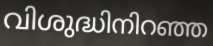
വിശുദ്ധിനിറഞ്ഞ